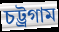
চট্ট্রগাম